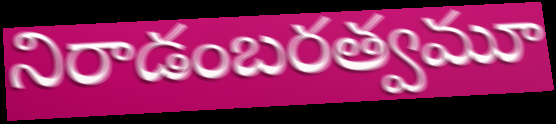
నిరాడంబరత్వమూ